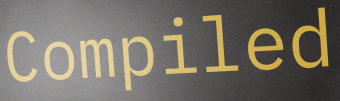
Compiled